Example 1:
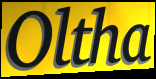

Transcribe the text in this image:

Oltha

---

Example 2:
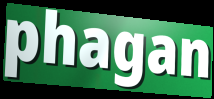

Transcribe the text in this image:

phagan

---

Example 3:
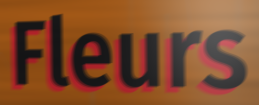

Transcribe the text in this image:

Fleurs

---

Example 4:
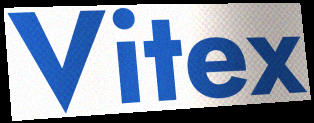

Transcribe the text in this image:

Vitex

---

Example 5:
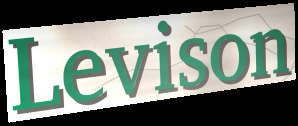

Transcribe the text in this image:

Levison